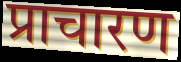
प्राचारण